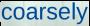
coarsely